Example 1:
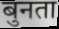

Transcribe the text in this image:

बुनता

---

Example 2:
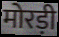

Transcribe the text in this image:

मोरड़ी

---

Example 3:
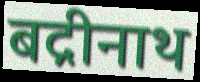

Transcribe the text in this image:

बद्रीनाथ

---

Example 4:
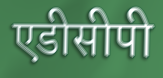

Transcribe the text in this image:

एडीसीपी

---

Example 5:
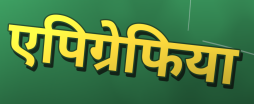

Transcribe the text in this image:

एपिग्रेफिया